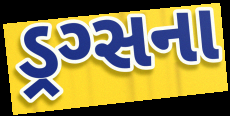
ડ્રગ્સના